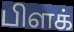
பிளக்